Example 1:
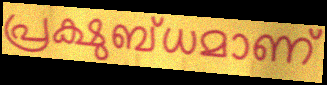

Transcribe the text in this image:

പ്രക്ഷുബ്ധമാണ്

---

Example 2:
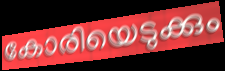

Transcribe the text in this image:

കോരിയെടുക്കും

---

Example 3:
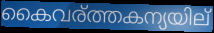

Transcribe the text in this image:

കൈവര്ത്തകന്യയില്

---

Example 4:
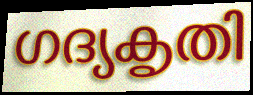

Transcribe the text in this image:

ഗദ്യകൃതി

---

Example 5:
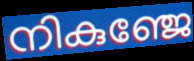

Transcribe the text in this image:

നികുഞ്ജേ